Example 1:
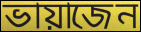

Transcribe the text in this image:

ভায়াজেন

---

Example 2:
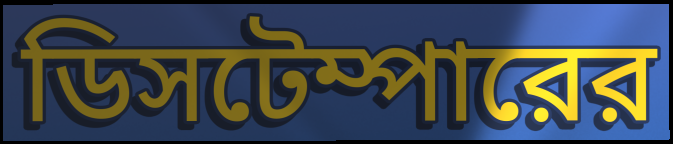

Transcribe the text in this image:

ডিসটেম্পারের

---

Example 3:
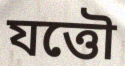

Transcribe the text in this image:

যত্তৌ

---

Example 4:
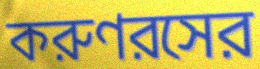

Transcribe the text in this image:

করুণরসের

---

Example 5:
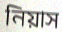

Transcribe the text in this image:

নিয়াস